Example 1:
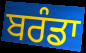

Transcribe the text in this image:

ਬਰੰਡਾ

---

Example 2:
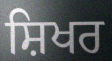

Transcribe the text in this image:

ਸ਼ਿਖਰ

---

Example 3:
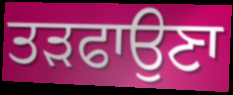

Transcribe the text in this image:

ਤੜਫਾਉਣਾ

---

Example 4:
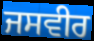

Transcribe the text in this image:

ਜਸਵੀਰ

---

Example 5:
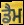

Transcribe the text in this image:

ਡੈਮ